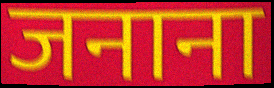
जनाना